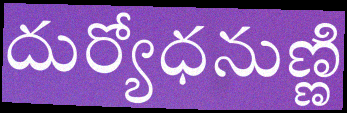
దుర్యోధనుణ్ణి